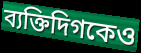
ব্যক্তিদিগকেও